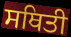
ਸਥਿਤੀ